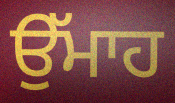
ਉੱਮਾਹ